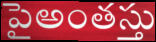
పైఅంతస్తు